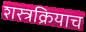
शस्त्रक्रियाच